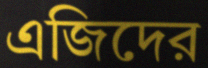
এজিদের